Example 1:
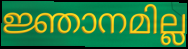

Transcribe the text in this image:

ജ്ഞാനമില്ല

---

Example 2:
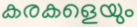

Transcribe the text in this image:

കരകളെയും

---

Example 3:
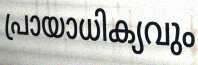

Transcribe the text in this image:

പ്രായാധിക്യവും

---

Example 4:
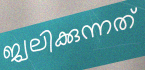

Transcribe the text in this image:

ജ്വലിക്കുന്നത്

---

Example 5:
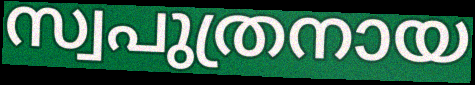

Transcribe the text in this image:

സ്വപുത്രനായ